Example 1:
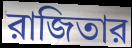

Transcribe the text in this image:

রাজিতার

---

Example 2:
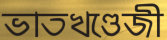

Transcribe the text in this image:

ভাতখণ্ডেজী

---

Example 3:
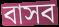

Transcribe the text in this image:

বাসব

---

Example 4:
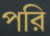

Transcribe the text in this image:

পরি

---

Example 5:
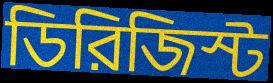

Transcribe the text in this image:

ডিরিজিস্ট